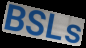
BSLs